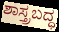
ಶಾಸ್ತ್ರಬದ್ಧ